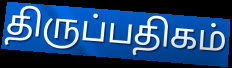
திருப்பதிகம்